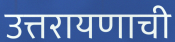
उत्तरायणाची